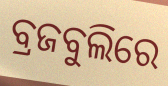
ବ୍ରଜବୁଲିରେ